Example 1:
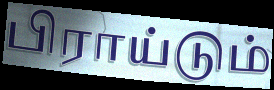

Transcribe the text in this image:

பிராய்டும்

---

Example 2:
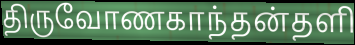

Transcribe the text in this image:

திருவோணகாந்தன்தளி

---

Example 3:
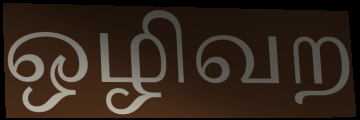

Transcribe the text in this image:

ஒழிவற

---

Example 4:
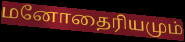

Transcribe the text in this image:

மனோதைரியமும்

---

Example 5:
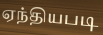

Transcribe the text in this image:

ஏந்தியபடி